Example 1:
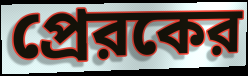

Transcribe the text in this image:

প্রেরকের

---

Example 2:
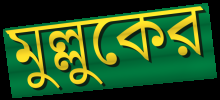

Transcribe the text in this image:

মুল্লুকের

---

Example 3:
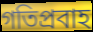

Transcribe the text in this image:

গতিপ্রবাহ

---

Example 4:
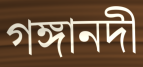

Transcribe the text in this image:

গঙ্গানদী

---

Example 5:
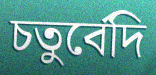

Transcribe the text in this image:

চতুর্বেদি